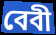
বেবী